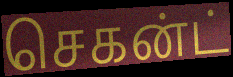
செகன்ட்